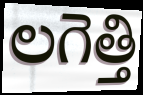
లగెత్తి